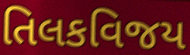
તિલકવિજય